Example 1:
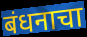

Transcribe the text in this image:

बंधनाचा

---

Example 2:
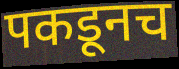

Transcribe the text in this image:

पकडूनच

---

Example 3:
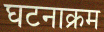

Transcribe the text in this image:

घटनाक्रम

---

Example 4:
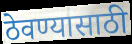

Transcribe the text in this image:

ठेवण्यासाठी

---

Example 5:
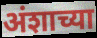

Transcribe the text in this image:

अंशाच्या